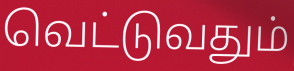
வெட்டுவதும்